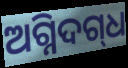
ଅଗ୍ନିଦଗ୍‌ଧ